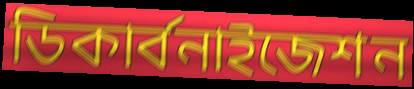
ডিকার্বনাইজেশন